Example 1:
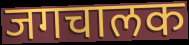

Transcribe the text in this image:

जगचालक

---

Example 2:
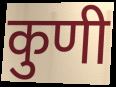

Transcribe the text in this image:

कुणी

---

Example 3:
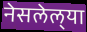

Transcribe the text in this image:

नेसलेल्या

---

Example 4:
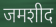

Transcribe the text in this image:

जमशीद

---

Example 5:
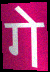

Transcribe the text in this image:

गे